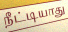
நீட்டியாது